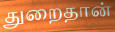
துறைதான்